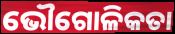
ଭୌଗୋଳିକତା